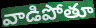
వాడిపోతూ